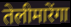
तेलीमारेंगा